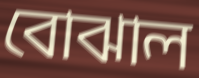
বোঝাল